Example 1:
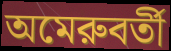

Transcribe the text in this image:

অমেরুবর্তী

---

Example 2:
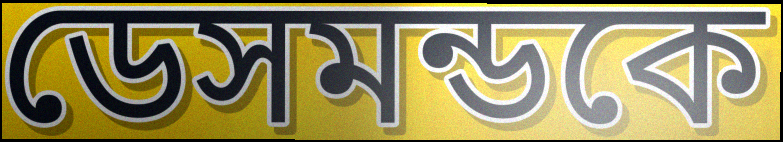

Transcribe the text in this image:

ডেসমন্ডকে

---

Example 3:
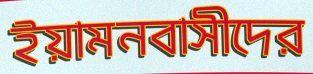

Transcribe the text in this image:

ইয়ামনবাসীদের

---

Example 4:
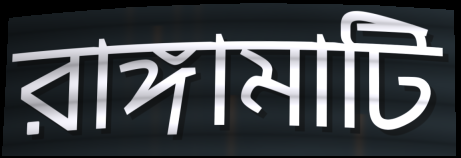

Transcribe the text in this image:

রাঙ্গামাটি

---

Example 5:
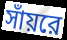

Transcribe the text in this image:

সাঁয়রে